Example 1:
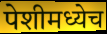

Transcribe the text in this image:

पेशीमध्येच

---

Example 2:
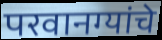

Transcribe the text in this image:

परवानग्यांचे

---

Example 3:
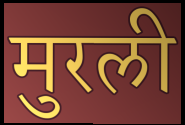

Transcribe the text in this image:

मुरली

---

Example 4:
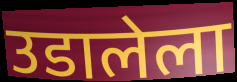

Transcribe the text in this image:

उडालेला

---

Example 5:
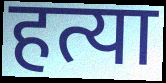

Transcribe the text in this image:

हत्या